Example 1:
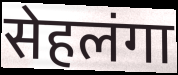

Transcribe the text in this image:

सेहलंगा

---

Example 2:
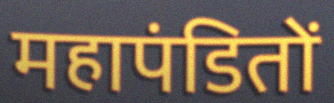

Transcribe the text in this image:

महापंडितों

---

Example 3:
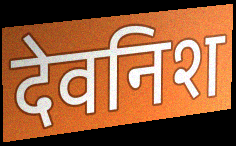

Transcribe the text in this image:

देवनिश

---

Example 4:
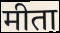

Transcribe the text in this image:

मीता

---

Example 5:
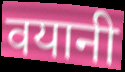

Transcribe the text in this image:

वयानी